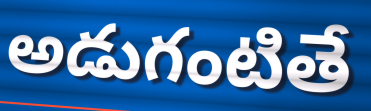
అడుగంటితే